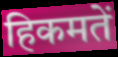
हिकमतें